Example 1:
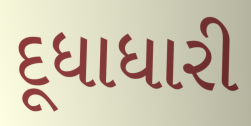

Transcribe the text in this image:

દૂધાધારી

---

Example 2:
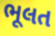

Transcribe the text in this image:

ભૂલત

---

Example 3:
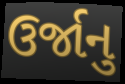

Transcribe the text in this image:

ઉર્જાનુ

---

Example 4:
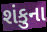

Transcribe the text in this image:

શંકુના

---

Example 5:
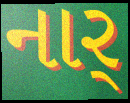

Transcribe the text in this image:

નાર્